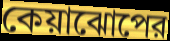
কেয়াঝোপের